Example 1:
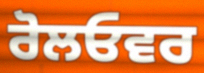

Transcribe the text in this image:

ਰੋਲਓਵਰ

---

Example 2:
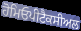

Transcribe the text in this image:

ਹੋਮਿਓਪੀਟੈਕਸੀਅਲ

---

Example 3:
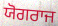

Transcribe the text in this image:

ਯੋਗਰਾਜ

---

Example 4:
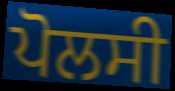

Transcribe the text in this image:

ਪੋਲਸੀ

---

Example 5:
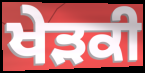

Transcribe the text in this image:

ਖੇੜਕੀ